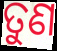
ତୁଣ